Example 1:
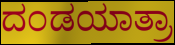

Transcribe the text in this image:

ದಂಡಯಾತ್ರಾ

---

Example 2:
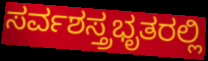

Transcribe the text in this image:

ಸರ್ವಶಸ್ತ್ರಭೃತರಲ್ಲಿ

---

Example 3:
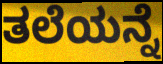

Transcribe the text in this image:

ತಲೆಯನ್ನೆ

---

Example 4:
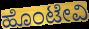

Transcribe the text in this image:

ಹೊಂಟೇವಿ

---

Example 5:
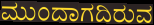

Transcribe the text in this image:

ಮುಂದಾಗದಿರುವ